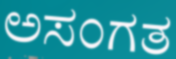
ಅಸಂಗತ